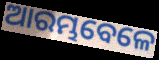
ଆରମ୍ଭବେଳେ